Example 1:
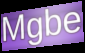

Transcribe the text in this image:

Mgbe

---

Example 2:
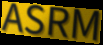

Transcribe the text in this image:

ASRM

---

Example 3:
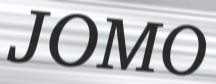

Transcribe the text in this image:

JOMO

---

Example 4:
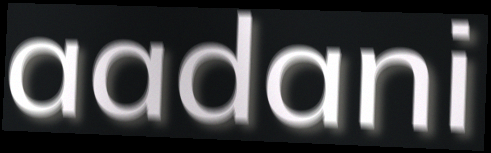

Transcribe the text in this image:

aadani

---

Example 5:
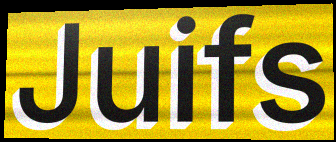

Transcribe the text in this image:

Juifs